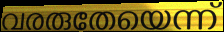
വരരുതേയെന്ന്